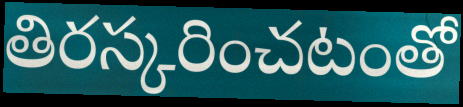
తిరస్కరించటంతో